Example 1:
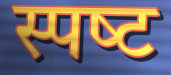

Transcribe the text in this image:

स्‍पष्‍ट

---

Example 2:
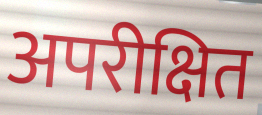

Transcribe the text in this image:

अपरीक्षित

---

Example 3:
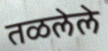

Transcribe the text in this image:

तळलेले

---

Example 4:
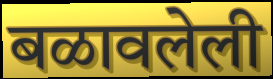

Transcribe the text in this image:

बळावलेली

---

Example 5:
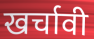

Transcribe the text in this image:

खर्चावी